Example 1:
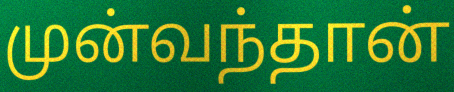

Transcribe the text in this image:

முன்வந்தான்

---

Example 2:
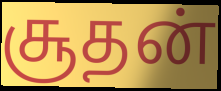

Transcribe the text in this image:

சூதன்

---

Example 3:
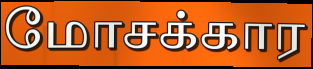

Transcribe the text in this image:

மோசக்கார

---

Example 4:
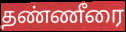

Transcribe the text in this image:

தண்ணீரை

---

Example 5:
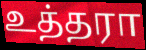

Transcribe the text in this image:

உத்தரா